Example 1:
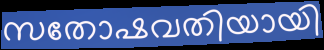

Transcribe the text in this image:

സതോഷവതിയായി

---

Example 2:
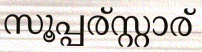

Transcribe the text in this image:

സൂപ്പര്സ്റ്റാര്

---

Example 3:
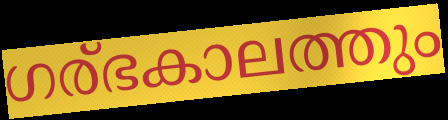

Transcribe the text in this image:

ഗര്ഭകാലത്തും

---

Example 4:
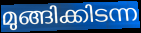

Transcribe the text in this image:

മുങ്ങിക്കിടന്ന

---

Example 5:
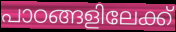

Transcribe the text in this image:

പാഠങ്ങളിലേക്ക്